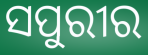
ସପୁରୀର